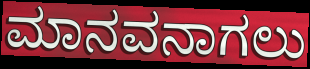
ಮಾನವನಾಗಲು